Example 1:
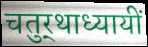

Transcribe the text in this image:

चतुर्थाध्यायीं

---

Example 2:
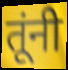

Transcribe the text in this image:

तूंनी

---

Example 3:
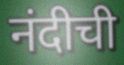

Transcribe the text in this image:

नंदीची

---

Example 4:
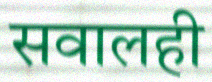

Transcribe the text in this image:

सवालही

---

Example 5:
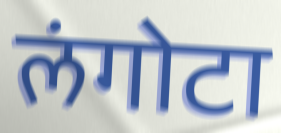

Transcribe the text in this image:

लंगोटा